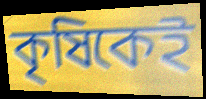
কৃষিকেই